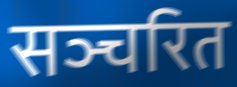
सञ्चरित